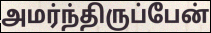
அமர்ந்திருப்பேன்